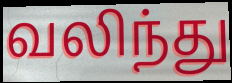
வலிந்து